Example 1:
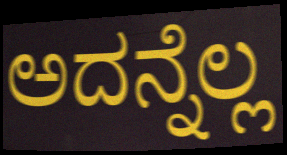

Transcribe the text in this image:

ಅದನ್ನೆಲ್ಲ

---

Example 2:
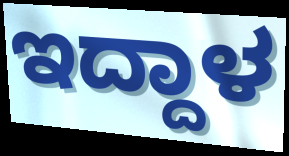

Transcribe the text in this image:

ಇದ್ದಾಳ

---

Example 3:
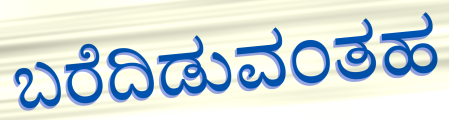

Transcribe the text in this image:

ಬರೆದಿಡುವಂತಹ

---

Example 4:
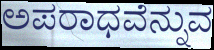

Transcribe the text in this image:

ಅಪರಾಧವೆನ್ನುವ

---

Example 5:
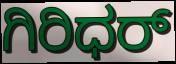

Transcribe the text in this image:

ಗಿರಿಧರ್